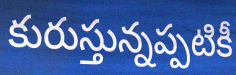
కురుస్తున్నప్పటికీ